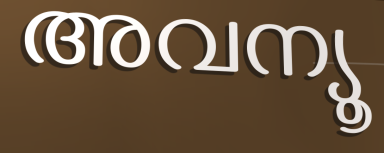
അവന്യൂ